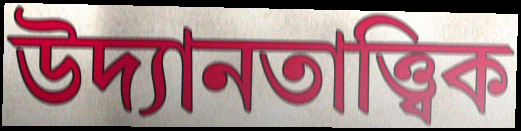
উদ্যানতাত্ত্বিক